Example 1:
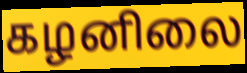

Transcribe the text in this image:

கழனிலை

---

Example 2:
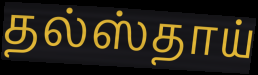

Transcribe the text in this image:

தல்ஸ்தாய்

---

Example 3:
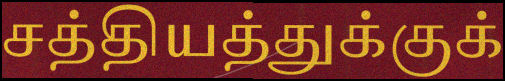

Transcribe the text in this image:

சத்தியத்துக்குக்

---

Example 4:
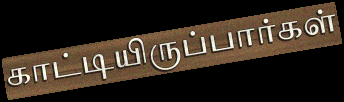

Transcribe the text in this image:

காட்டியிருப்பார்கள்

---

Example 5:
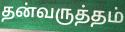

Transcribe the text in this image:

தன்வருத்தம்